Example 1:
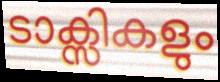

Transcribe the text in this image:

ടാക്സികളും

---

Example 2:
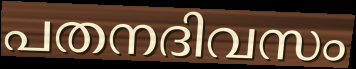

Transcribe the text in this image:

പതനദിവസം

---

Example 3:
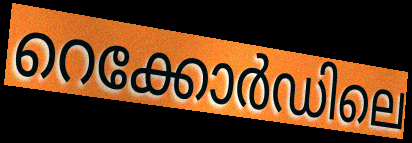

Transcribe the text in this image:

റെക്കോർഡിലെ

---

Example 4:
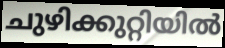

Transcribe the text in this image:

ചുഴിക്കുറ്റിയിൽ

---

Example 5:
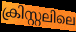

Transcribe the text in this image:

ക്രിസ്റ്റലിലെ